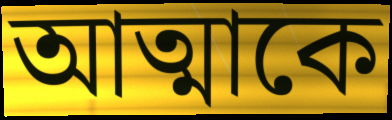
আত্মাকে